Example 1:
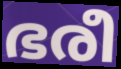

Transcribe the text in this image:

ഭരീ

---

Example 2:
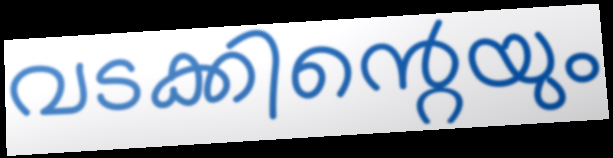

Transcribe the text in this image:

വടക്കിന്റെയും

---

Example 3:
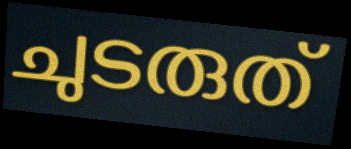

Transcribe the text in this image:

ചുടരുത്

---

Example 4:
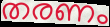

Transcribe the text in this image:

തരണം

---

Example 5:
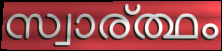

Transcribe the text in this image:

സ്വാര്ത്ഥം